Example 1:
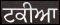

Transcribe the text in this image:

ਟਕੀਆ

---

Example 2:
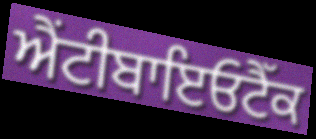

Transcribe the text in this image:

ਐਂਟੀਬਾਇਓਟੈੱਕ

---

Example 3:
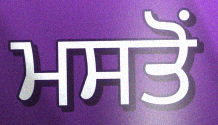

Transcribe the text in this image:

ਮਸਤੋਂ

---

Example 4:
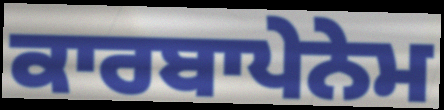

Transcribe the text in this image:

ਕਾਰਬਾਪੇਨੇਮ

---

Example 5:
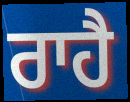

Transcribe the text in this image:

ਰਾਹੈ